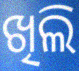
ଖିଲି